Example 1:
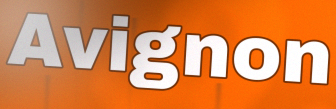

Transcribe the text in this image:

Avignon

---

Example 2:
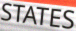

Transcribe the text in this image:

STATES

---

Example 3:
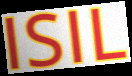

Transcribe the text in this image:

ISIL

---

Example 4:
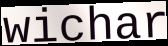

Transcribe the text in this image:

wichar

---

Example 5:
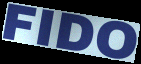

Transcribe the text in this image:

FIDO